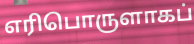
எரிபொருளாகப்